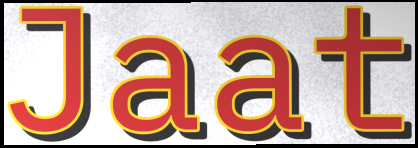
Jaat